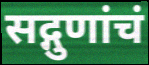
सद्गुणांचं